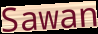
Sawan